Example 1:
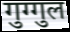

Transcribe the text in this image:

गुग्‍गुल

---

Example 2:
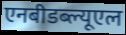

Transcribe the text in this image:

एनबीडब्ल्यूएल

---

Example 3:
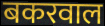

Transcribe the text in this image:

बकरवाल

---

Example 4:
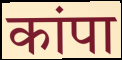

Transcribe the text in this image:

कांपा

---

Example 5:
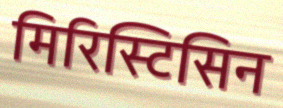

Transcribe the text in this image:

मिरिस्टिसिन